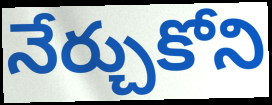
నేర్చుకోని